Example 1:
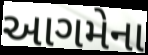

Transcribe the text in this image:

આગમેના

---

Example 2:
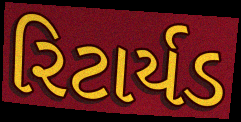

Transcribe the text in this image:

રિટાર્યડ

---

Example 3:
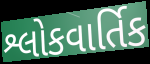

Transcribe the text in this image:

શ્લોકવાર્તિક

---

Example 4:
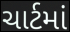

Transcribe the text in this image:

ચાર્ટમાં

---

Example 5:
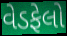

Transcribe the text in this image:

વેડફેલો